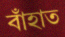
বাঁহাত